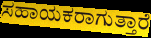
ಸಹಾಯಕರಾಗುತ್ತಾರೆ